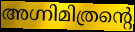
അഗ്നിമിത്രന്റെ